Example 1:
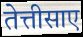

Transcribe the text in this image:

तेत्तीसाए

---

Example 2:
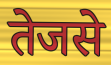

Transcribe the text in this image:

तेजसे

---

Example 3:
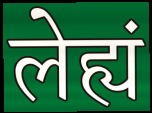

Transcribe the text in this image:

लेह्यं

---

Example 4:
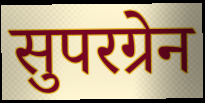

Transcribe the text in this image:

सुपरग्रेन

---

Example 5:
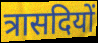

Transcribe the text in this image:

त्रासदियों